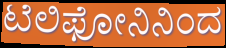
ಟೆಲಿಫೋನಿನಿಂದ